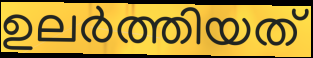
ഉലർത്തിയത്